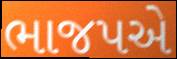
ભાજપએ